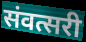
संवत्सरी